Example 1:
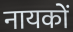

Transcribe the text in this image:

नायकों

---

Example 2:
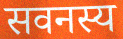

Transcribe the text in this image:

सवनस्य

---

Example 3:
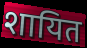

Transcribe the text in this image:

शायित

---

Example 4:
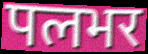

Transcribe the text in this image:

पलभर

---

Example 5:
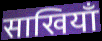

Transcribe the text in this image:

साखियाँ